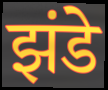
झंडे